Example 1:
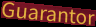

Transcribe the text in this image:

Guarantor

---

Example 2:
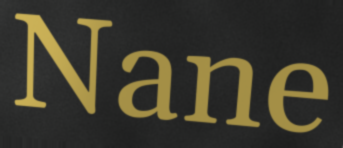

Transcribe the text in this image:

Nane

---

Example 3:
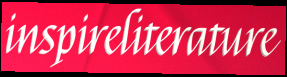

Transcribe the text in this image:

inspireliterature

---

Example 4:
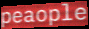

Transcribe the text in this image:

peaople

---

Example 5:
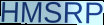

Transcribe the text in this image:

HMSRP